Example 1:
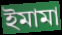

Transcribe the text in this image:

ইমামা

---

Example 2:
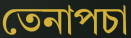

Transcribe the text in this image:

তেনাপচা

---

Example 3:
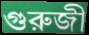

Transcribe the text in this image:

গুরুজী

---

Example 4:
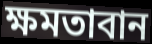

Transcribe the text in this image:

ক্ষমতাবান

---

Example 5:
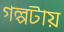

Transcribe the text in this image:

গল্পটায়